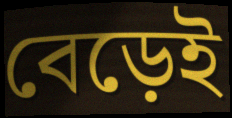
বেড়েই